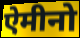
ऐमीनो